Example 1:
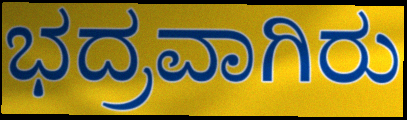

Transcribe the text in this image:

ಭದ್ರವಾಗಿರು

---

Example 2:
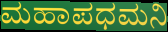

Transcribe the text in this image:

ಮಹಾಪಧಮನಿ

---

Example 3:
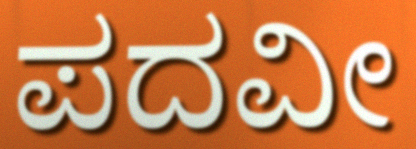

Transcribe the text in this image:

ಪದವೀ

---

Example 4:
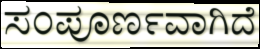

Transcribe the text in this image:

ಸಂಪೂರ್ಣವಾಗಿದೆ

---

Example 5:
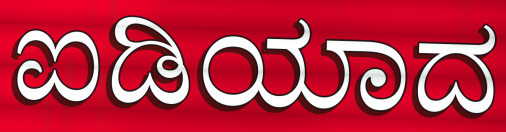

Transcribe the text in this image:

ಐಡಿಯಾದ